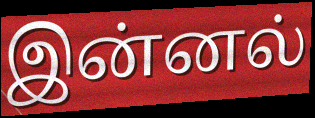
இன்னல்